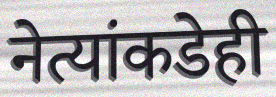
नेत्यांकडेही